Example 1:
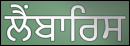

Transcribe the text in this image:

ਲੈਂਬਾਰਿਸ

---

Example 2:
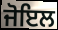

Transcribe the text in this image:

ਜੋਇਲ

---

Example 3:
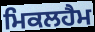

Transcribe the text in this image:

ਮਿਕਲਹੈਮ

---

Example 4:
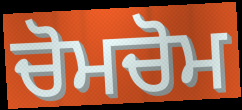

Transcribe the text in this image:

ਚੋਮਚੋਮ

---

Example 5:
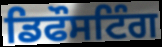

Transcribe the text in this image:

ਡਿਫੌਸਟਿੰਗ